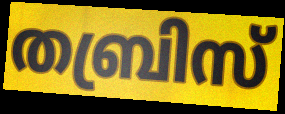
തബ്രിസ്